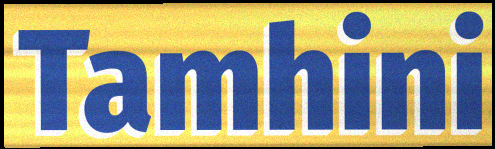
Tamhini